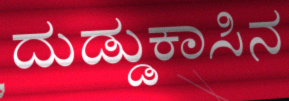
ದುಡ್ಡುಕಾಸಿನ